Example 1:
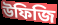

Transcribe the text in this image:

উফিজি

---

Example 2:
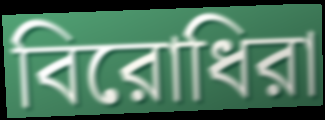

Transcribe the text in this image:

বিরোধিরা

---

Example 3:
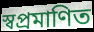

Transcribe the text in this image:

স্বপ্রমাণিত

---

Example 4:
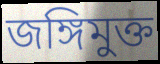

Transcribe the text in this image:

জঙ্গিমুক্ত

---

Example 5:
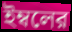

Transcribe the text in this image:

ইম্বলের